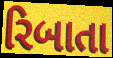
રિબાતા